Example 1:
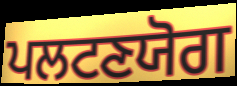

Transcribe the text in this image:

ਪਲਟਣਯੋਗ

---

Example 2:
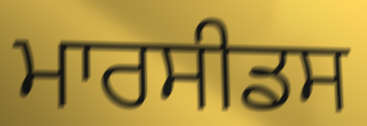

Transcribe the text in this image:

ਮਾਰਸੀਡਸ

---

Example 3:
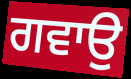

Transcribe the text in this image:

ਗਵਾਉ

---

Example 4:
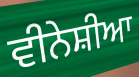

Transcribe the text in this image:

ਵੀਨੇਸ਼ੀਆ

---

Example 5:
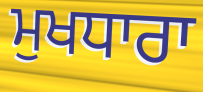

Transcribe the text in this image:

ਮੁਖਧਾਰਾ